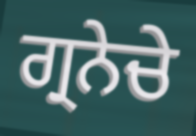
ਗ੍ਰਨੇਚੇ